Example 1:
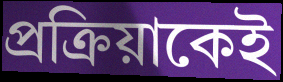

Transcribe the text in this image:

প্রক্রিয়াকেই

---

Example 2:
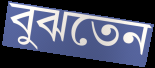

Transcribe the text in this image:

বুঝতেন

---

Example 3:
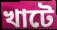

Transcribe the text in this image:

খাটে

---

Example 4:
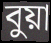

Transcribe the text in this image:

বুয়া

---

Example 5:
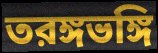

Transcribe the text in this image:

তরঙ্গভঙ্গি